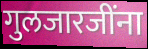
गुलजारजींना